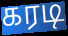
கரடி